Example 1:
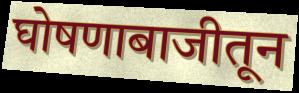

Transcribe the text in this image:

घोषणाबाजीतून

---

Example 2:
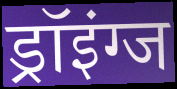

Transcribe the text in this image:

ड्रॉइंग्ज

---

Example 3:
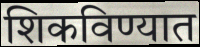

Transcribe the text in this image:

शिकविण्यात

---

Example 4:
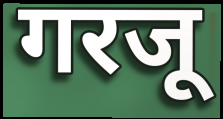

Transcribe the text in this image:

गरजू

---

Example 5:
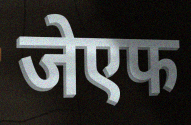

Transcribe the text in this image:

जेएफ